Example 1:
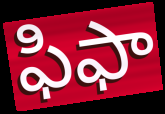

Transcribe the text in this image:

ఫిఫా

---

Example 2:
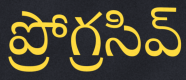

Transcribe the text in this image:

ప్రోగ్రసివ్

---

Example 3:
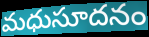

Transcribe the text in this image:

మధుసూదనం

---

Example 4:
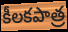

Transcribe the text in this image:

కీలకపాత్ర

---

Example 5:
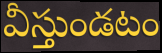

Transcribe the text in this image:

వీస్తుండటం